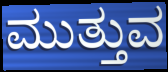
ಮುತ್ತುವ